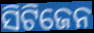
ସିଟିଜେନ